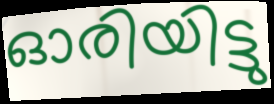
ഓരിയിട്ടു